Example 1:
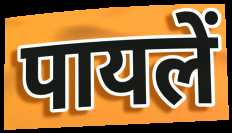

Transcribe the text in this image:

पायलें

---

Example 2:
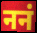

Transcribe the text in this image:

ननं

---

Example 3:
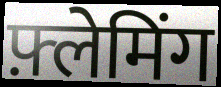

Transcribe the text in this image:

फ़्लेमिंग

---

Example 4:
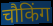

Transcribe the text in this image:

चौकिंग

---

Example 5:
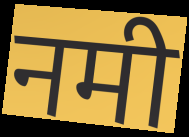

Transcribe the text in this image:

नमी